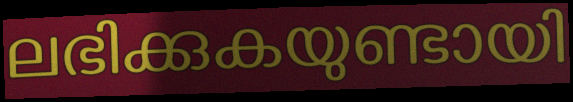
ലഭിക്കുകയുണ്ടായി